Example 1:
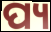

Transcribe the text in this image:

ପ୍ୟ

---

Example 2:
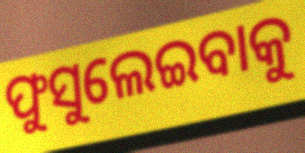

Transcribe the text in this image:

ଫୁସୁଲେଇବାକୁ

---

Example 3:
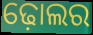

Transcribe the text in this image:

ଢ଼ୋଲର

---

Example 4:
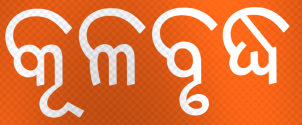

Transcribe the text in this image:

କୂଳବୃଦ୍ଧ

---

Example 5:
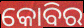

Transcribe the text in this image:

କୋବିର